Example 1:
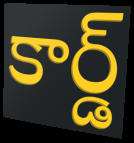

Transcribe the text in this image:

కార్డ్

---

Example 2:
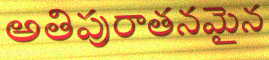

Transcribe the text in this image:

అతిపురాతనమైన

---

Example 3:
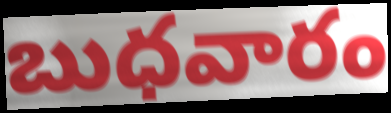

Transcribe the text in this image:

బుధవారం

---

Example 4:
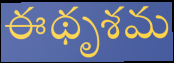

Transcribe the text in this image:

ఈథృశమ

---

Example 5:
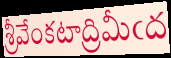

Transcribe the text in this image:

శ్రీవేంకటాద్రిమీఁద